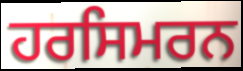
ਹਰਸਿਮਰਨ